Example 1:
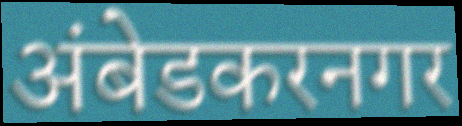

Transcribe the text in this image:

अंबेडकरनगर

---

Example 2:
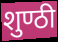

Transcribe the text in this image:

शुण्ठी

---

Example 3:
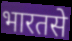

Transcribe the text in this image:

भारतसे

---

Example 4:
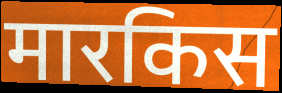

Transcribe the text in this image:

मारकिस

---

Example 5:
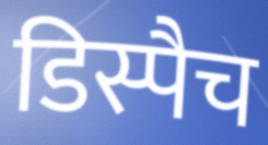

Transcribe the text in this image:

डिस्‍पैच